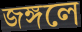
জঙ্গলে